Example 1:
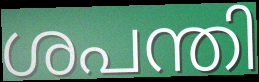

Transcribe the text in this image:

ശപന്തി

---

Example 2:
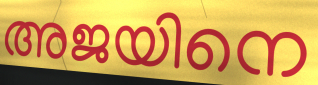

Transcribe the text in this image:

അജയിനെ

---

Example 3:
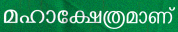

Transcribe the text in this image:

മഹാക്ഷേത്രമാണ്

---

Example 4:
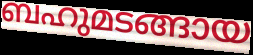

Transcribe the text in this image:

ബഹുമടങ്ങായ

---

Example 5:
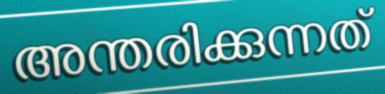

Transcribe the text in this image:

അന്തരിക്കുന്നത്